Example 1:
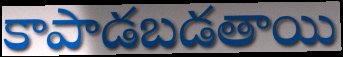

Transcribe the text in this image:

కాపాడబడతాయి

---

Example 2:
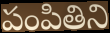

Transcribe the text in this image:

పంపితిని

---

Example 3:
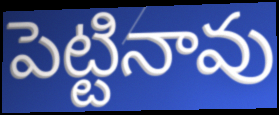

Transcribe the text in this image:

పెట్టినావు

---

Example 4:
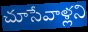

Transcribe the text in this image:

చూసేవాళ్లని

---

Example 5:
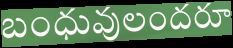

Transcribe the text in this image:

బంధువులందరూ